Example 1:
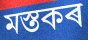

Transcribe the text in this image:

মস্তকৰ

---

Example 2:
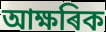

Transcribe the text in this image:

আক্ষৰিক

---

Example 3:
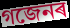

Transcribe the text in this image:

গজেনৰ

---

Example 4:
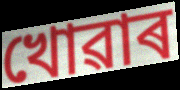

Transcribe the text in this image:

খোৱাৰ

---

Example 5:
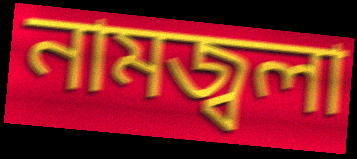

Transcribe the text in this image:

নামজ্বলা